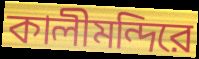
কালীমন্দিরে